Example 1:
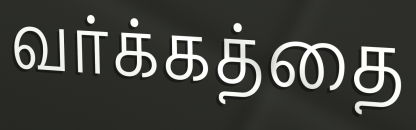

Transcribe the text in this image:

வர்க்கத்தை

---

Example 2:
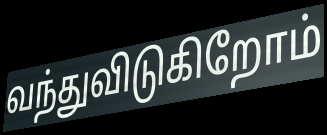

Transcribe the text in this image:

வந்துவிடுகிறோம்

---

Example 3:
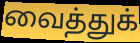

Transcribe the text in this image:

வைத்துக்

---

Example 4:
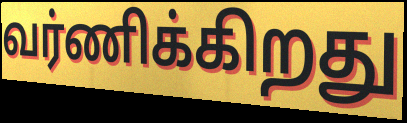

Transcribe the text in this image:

வர்ணிக்கிறது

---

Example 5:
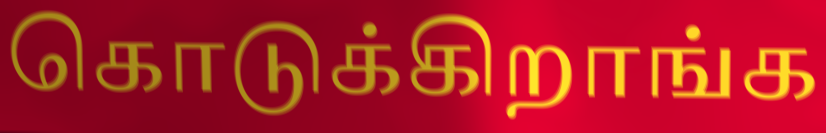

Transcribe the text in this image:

கொடுக்கிறாங்க